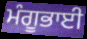
ਮੰਗੂਭਾਈ